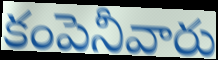
కంపెనీవారు